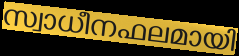
സ്വാധീനഫലമായി